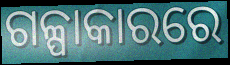
ଗଳ୍ପାକାରରେ